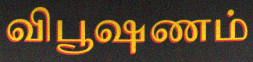
விபூஷணம்